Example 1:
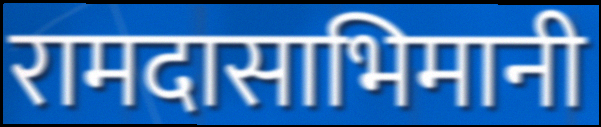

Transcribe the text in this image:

रामदासाभिमानी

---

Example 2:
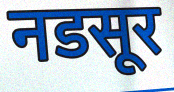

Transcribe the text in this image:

नडसूर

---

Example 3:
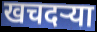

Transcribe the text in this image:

खचदऱ्या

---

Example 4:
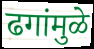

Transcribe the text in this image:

ढगांमुळे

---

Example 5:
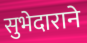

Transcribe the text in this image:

सुभेदाराने